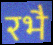
रभै